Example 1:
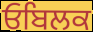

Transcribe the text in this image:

ਓਬਿਲਕ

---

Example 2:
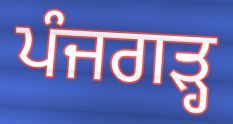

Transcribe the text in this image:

ਪੰਜਗੜ੍ਹ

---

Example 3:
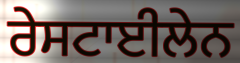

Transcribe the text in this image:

ਰੇਸਟਾਈਲੇਨ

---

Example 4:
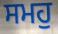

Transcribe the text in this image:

ਸਮਹੁ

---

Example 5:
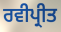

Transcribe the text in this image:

ਰਵੀਪ੍ਰੀਤ